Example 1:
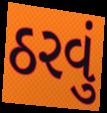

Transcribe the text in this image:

ઠરવું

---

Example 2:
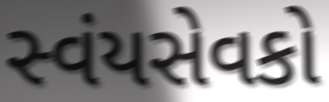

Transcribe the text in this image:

સ્વંયસેવકો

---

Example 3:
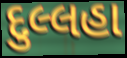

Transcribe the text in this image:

દુલ્લહા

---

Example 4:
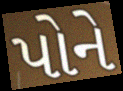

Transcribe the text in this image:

પોને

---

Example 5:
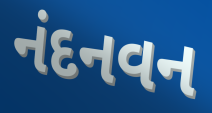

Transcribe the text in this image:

નંદનવન